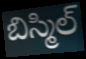
బిస్మిల్